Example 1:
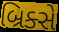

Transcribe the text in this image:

બ્રિક્સે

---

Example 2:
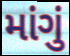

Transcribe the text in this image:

માંગું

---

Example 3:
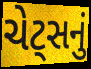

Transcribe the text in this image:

ચેટ્સનું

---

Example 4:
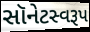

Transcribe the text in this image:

સૉનેટસ્વરૂપ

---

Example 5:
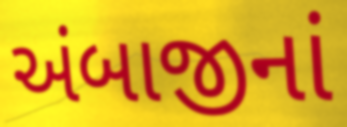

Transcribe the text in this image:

અંબાજીનાં